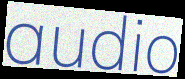
audio